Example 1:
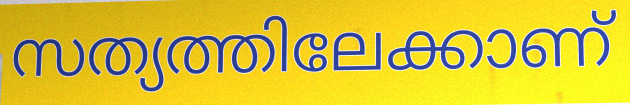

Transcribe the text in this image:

സത്യത്തിലേക്കാണ്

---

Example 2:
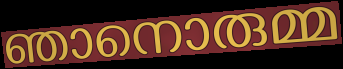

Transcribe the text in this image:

ഞാനൊരുമ്മ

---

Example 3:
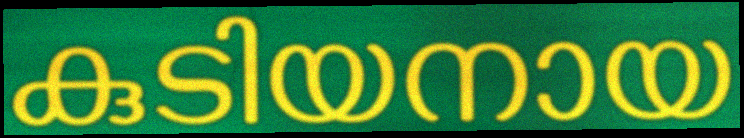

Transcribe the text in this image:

കുടിയനായ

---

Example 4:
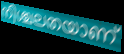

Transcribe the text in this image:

നിശ്ചലതയാണ്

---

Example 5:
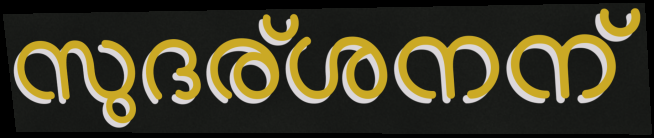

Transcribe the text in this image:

സുദര്ശനന്